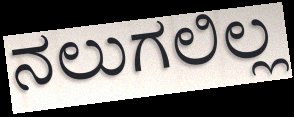
ನಲುಗಲಿಲ್ಲ